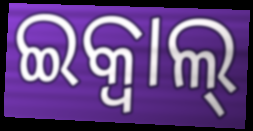
ଇକ୍ୱାଲ୍